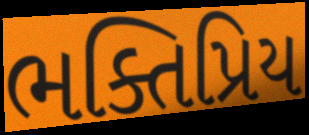
ભક્તિપ્રિય